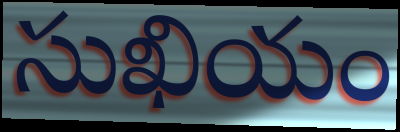
సుఖియం